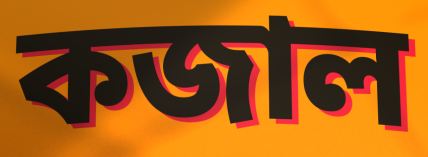
কজাল